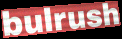
bulrush